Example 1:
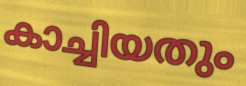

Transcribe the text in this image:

കാച്ചിയതും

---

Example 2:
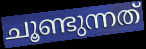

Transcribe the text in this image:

ചൂണ്ടുന്നത്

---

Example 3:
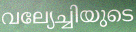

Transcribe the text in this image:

വല്യേച്ചിയുടെ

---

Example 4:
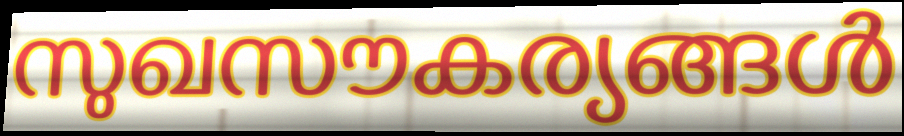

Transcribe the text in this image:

സുഖസൗകര്യങ്ങൾ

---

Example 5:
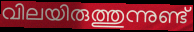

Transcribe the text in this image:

വിലയിരുത്തുന്നുണ്ട്